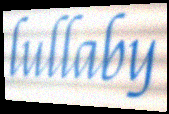
lullaby